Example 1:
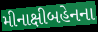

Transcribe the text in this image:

મીનાક્ષીબહેનના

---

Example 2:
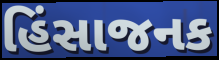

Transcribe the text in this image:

હિંસાજનક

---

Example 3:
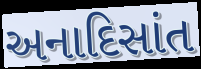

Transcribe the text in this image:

અનાદિસાંત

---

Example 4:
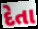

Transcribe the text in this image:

દેતા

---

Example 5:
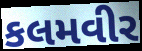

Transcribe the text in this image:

કલમવીર